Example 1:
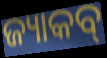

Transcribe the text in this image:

ଜ୍ୟାକବ୍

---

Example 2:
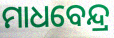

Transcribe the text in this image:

ମାଧବେନ୍ଦ୍ର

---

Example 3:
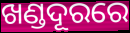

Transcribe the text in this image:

ଖଣ୍ଡଦୂରରେ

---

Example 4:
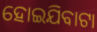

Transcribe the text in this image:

ହୋଇଯିବାଟା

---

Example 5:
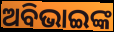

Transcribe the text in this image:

ଅବିଭାଇଙ୍କ